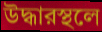
উদ্ধারস্থলে